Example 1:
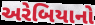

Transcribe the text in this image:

અરેબિયાનો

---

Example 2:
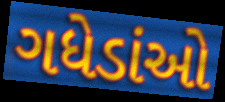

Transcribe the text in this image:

ગધેડાંઓ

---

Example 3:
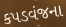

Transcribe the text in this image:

કપડવંજના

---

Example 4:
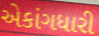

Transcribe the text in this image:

એકાંગધારી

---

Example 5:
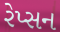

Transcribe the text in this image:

રેપ્સન